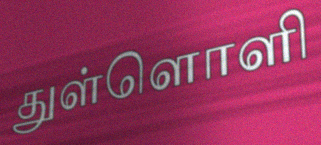
துள்ளொளி